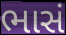
ભાસં